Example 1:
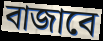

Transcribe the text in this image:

বাজাবে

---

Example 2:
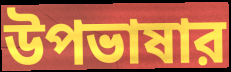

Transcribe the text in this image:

উপভাষার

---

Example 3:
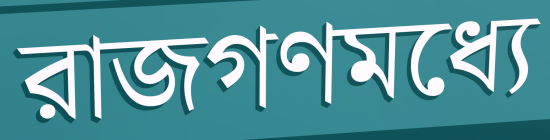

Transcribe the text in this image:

রাজগণমধ্যে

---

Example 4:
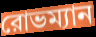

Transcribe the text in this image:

রোভম্যান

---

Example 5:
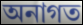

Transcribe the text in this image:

অনাগত